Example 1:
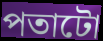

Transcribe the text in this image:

পতাটো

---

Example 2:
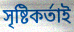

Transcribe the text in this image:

সৃষ্টিকৰ্তাই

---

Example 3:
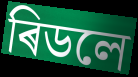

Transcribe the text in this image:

ৰিডলে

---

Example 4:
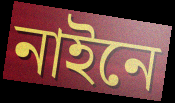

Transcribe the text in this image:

নাইনে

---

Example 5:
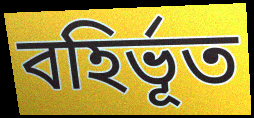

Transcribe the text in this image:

বহিৰ্ভূত